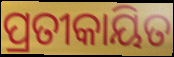
ପ୍ରତୀକାୟିତ